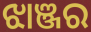
ଝାଞ୍ଜର